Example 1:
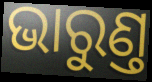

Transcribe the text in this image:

ଭାରୁଣ୍ତ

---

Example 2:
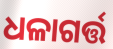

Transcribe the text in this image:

ଧଳାଗର୍ତ୍ତ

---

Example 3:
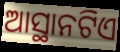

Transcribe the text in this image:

ଆସ୍ଥାନଟିଏ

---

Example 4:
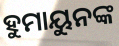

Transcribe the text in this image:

ହୁମାୟୁନଙ୍କ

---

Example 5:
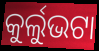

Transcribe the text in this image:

କୁର୍ଲୁଭଟା